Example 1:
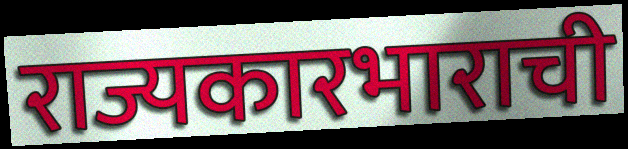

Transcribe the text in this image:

राज्यकारभाराची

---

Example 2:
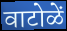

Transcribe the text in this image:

वाटोळें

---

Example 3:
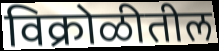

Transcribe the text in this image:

विक्रोळीतील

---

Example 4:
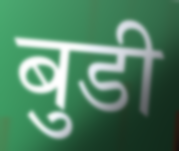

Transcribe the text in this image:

बुडी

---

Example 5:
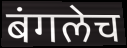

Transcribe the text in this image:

बंगलेच